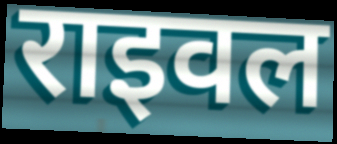
राइवल